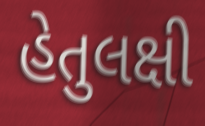
હેતુલક્ષી